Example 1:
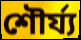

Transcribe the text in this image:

শৌৰ্য্য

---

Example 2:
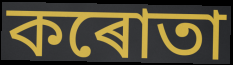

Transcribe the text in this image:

কৰোতা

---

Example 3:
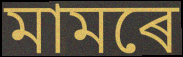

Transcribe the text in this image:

মামৰে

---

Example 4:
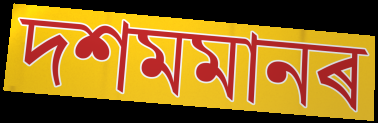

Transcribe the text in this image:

দশমমানৰ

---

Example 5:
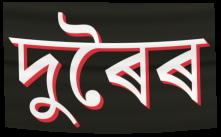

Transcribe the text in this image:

দুৰৈৰ